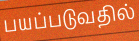
பயப்படுவதில்